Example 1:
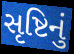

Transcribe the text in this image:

સૃષ્ટિનું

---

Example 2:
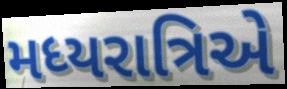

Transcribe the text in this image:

મધ્યરાત્રિએ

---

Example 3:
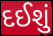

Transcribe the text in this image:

દઈશું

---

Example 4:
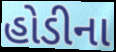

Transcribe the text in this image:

હોડીના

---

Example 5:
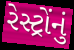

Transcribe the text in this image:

રેસ્ટ્રોંનું